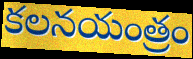
కలనయంత్రం